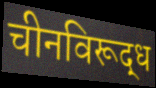
चीनविरूद्ध